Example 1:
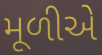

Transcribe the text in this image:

મૂળીએ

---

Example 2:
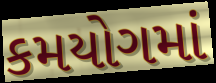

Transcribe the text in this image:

કમયોગમાં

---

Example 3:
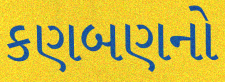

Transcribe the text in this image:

કણબણનો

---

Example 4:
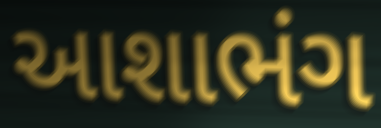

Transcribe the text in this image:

આશાભંગ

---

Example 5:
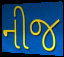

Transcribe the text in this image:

નીજ